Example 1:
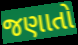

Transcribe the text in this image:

જણાતો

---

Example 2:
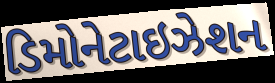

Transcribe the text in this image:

ડિમોનેટાઇઝેશન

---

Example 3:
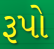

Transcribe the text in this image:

રૂપો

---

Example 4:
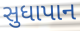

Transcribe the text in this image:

સુધાપાન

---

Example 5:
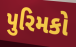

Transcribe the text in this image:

પુરિમકો